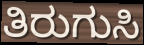
ತಿರುಗುಸಿ